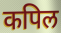
कपिल